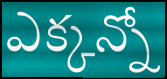
ఎక్కన్నో